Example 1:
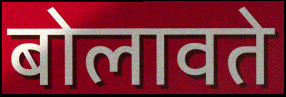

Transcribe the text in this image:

बोलावते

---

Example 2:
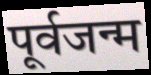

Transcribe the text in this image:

पूर्वजन्म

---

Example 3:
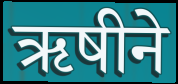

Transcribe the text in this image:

ऋषीने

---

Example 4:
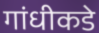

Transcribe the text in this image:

गांधीकडे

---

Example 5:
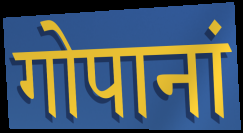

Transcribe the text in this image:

गोपानां